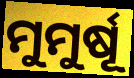
ମୁମୁର୍ଷୂ